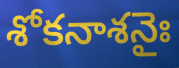
శోకనాశనైః